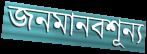
জনমানবশূন্য